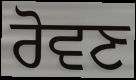
ਰੋਵਣ